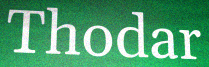
Thodar